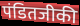
पंडितजीकी